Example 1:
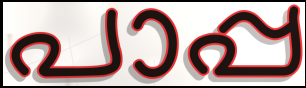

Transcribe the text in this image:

പാപ്പ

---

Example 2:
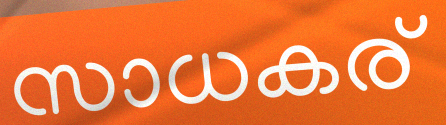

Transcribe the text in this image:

സാധകര്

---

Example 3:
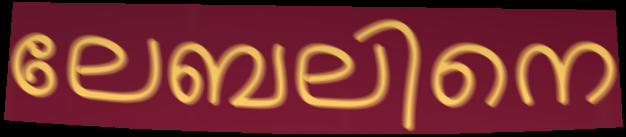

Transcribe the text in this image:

ലേബലിനെ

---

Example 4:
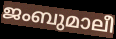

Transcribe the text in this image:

ജംബുമാലീ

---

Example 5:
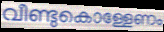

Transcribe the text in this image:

വീണ്ടുകൊള്ളേണം